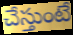
చేస్తుంటే